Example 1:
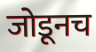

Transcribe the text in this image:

जोडूनच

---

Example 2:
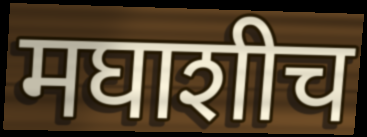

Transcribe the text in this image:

मघाशीच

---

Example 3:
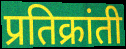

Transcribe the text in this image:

प्रतिक्रांती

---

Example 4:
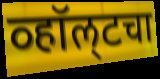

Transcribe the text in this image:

व्हॉल्टचा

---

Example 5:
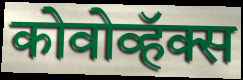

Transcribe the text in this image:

कोवोव्हॅक्स